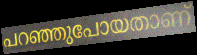
പറഞ്ഞുപോയതാണ്